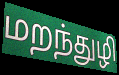
மறந்துழி